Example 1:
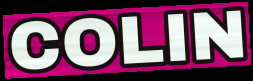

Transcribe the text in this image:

COLIN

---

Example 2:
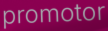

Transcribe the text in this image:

promotor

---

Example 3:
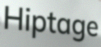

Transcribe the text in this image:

Hiptage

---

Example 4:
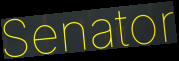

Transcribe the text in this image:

Senator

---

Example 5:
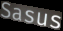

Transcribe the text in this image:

Sasus